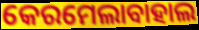
କେରମେଲାବାହାଲ